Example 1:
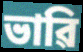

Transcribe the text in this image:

ভাৱি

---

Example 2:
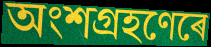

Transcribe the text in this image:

অংশগ্ৰহণেৰে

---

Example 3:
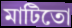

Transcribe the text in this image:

মাটিতো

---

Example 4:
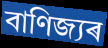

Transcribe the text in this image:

বাণিজ্যৰ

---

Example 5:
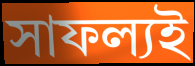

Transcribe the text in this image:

সাফল্যই